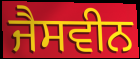
ਜੈਸਵੀਨ